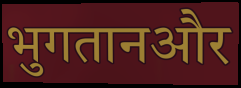
भुगतानऔर